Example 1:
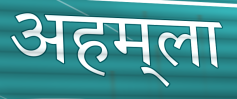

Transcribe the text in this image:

अहम्‌ला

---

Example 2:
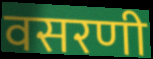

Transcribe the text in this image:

वसरणी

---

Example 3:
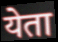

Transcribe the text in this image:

येता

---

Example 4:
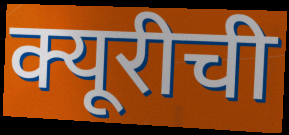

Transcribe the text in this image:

क्यूरीची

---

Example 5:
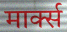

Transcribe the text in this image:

मार्क्‍स